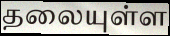
தலையுள்ள